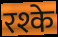
रश्के